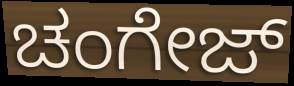
ಚಂಗೇಜ್